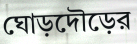
ঘোড়দৌড়ের